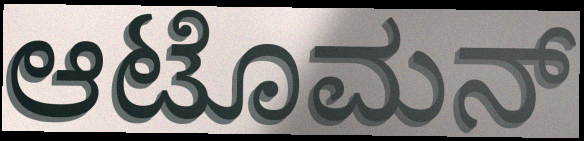
ಆಟೊಮನ್